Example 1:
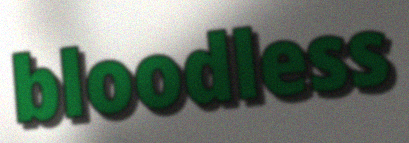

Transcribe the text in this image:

bloodless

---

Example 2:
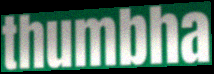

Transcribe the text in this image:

thumbha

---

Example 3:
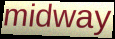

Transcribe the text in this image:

midway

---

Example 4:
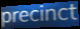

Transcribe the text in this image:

precinct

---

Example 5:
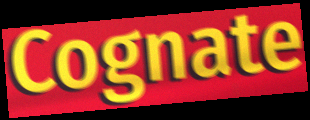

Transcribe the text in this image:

Cognate